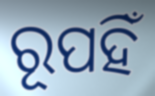
ରୂପହିଁ